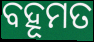
ବହୂମତ